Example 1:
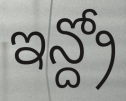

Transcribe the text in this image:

ఇన్ద్రో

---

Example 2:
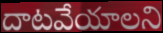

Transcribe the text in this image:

దాటవేయాలని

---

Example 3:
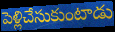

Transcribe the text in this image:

పెళ్లిచేసుకుంటాడు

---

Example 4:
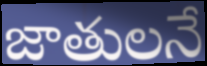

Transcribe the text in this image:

జాతులనే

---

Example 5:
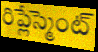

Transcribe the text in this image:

రిప్లేస్మెంట్